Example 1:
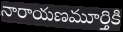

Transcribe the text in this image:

నారాయణమూర్తికి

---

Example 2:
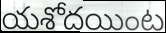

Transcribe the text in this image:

యశోదయింట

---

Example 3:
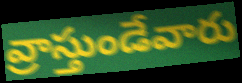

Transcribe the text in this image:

వ్రాస్తుండేవారు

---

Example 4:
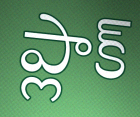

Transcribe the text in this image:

ప్లాక్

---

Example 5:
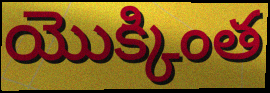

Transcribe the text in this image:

యొక్కింత